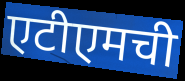
एटीएमची